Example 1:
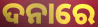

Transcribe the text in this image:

ଦନାରେ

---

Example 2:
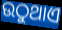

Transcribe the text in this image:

ଉଠୁଥାଏ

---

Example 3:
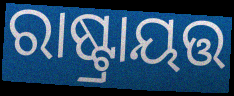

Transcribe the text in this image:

ରାଷ୍ଟ୍ରାୟତ୍ତ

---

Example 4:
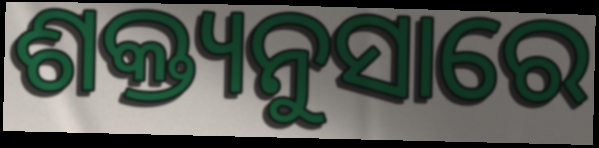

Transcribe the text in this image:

ଶକ୍ତ୍ୟନୁସାରେ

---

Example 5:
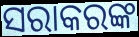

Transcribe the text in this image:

ସରାକରଙ୍କ